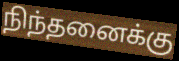
நிந்தனைக்கு